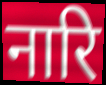
नारि